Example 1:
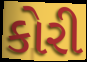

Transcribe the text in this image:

કોરી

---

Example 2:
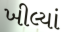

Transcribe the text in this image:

ખીલ્યાં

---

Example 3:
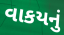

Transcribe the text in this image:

વાકયનું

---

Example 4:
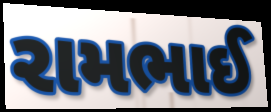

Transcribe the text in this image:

રામભાઈ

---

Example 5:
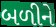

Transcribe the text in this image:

બળીને